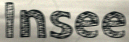
Insee